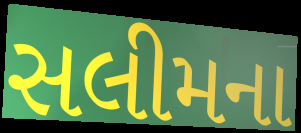
સલીમના